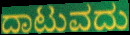
ದಾಟುವದು